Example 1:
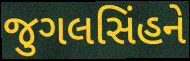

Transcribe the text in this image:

જુગલસિંહને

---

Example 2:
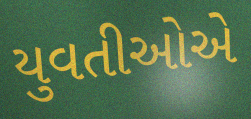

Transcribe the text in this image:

યુવતીઓએ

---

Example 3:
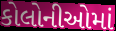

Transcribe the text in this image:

કોલોનીઓમાં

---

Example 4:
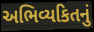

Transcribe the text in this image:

અભિવ્યકિતનું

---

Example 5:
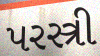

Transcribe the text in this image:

પરસ્ત્રી